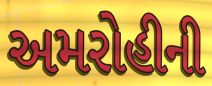
અમરોહીની